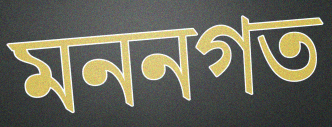
মননগত